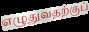
எழுதுவதற்குப்